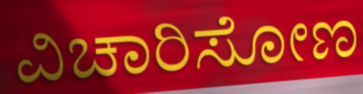
ವಿಚಾರಿಸೋಣ